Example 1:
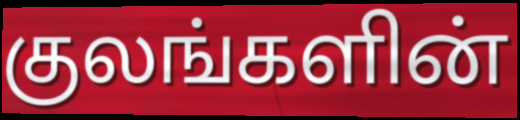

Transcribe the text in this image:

குலங்களின்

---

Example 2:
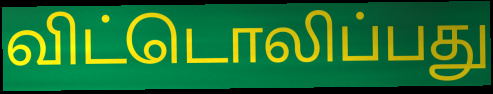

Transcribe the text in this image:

விட்டொலிப்பது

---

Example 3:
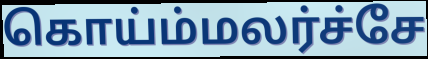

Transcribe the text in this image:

கொய்ம்மலர்ச்சே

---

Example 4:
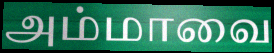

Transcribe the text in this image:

அம்மாவை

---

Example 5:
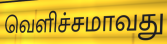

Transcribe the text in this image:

வெளிச்சமாவது